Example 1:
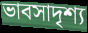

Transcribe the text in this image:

ভাবসাদৃশ্য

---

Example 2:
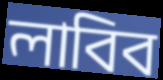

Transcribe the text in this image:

লাবিব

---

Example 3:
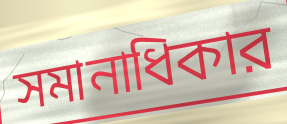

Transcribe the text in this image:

সমানাধিকার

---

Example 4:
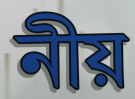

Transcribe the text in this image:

নীয়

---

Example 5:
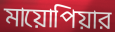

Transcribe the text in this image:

মায়োপিয়ার